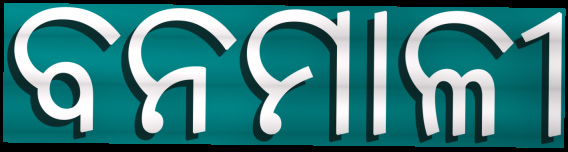
ବନମାଳୀ